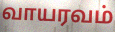
வாயரவம்